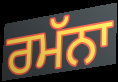
ਰਮੱਨਾ